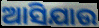
ଆସିଯାଉ